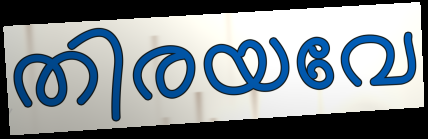
തിരയവേ